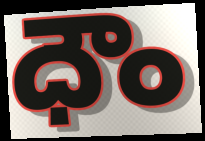
ధౌం